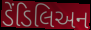
ડેંડિલિઅન